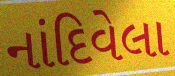
નાંદિવેલા